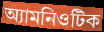
অ্যামনিওটিক